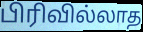
பிரிவில்லாத